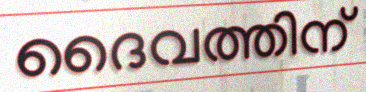
ദൈവത്തിന്